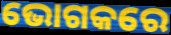
ଭୋଗକରେ